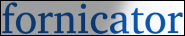
fornicator